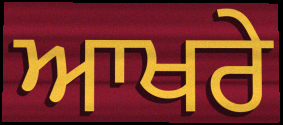
ਆਖਰੇ